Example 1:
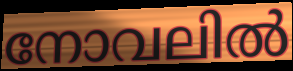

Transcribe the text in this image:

നോവലിൽ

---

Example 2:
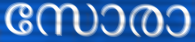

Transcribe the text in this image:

സോരാ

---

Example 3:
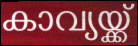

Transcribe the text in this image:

കാവ്യയ്ക്ക്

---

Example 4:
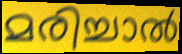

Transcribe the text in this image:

മരിച്ചാൽ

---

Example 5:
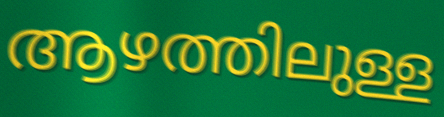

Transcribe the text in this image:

ആഴത്തിലുള്ള